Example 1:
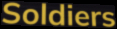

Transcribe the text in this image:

Soldiers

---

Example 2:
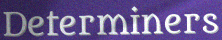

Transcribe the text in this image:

Determiners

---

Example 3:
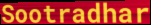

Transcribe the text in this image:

Sootradhar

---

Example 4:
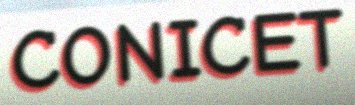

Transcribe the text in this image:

CONICET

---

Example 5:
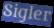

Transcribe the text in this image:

Sigler